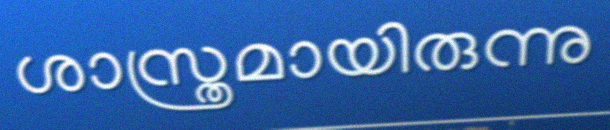
ശാസ്ത്രമായിരുന്നു